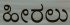
ಹೀರಲು